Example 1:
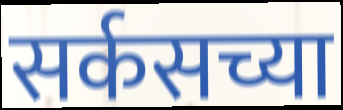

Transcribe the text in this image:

सर्कसच्या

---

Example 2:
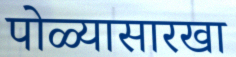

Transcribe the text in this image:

पोळ्यासारखा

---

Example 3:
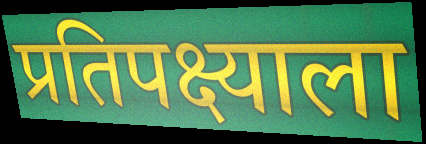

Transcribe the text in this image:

प्रतिपक्ष्याला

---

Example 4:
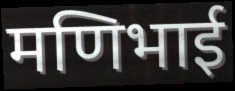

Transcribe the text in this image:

मणिभाई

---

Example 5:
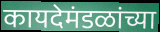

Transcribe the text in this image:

कायदेमंडळांच्या